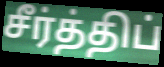
சீர்த்திப்